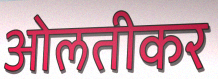
ओलतीकर